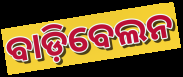
ବାଡ଼ିବେଲନ